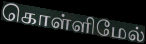
கொள்ளிமேல்